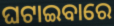
ଘଟାଇବାରେ